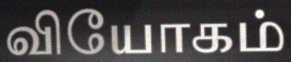
வியோகம்